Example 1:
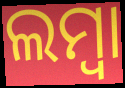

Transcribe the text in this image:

ଲମ୍ୱା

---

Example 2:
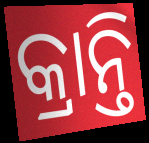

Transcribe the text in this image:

କ୍ରାନ୍ତି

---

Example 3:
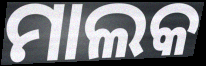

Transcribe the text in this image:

ମାଲକ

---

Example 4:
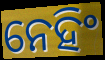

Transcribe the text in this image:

ନେହିଂ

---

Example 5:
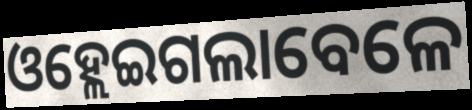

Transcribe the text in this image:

ଓହ୍ଲେଇଗଲାବେଳେ